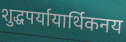
शुद्धपर्यायार्थिकनय